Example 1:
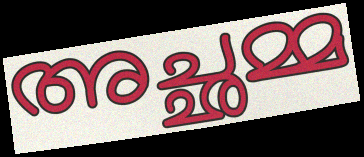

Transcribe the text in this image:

അച്ഛമ്മ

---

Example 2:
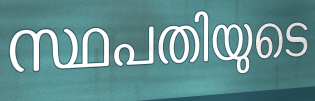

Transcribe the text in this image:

സ്ഥപതിയുടെ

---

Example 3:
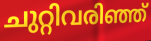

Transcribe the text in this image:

ചുറ്റിവരിഞ്ഞ്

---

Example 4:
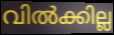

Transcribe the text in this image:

വിൽക്കില്ല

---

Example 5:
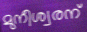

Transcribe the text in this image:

മുനീശ്വരന്